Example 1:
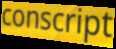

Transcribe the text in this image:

conscript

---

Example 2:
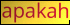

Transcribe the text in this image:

apakah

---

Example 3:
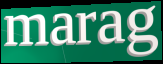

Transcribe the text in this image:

marag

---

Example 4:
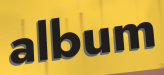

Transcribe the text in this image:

album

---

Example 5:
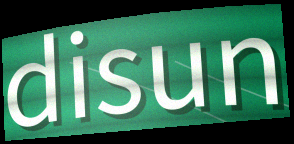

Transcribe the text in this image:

disun